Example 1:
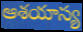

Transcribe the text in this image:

ఆశయాస్య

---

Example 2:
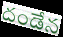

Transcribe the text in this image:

దండేన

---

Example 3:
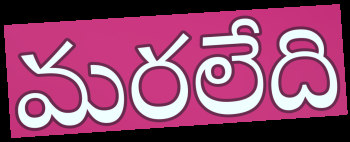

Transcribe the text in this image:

మరలేది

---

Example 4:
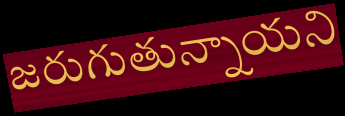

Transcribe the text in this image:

జరుగుతున్నాయని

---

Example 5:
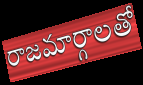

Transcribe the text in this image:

రాజమార్గాలతో